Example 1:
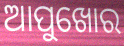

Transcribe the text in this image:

ଆପୁଖୋର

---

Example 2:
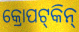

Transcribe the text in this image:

କ୍ରୋପଟ୍‍କିନ୍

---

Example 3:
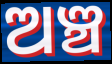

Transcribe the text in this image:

ଅଞ୍ଚ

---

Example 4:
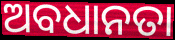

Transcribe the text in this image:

ଅବଧାନତା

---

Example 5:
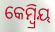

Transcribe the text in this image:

କେମ୍ବ୍ରିୟ